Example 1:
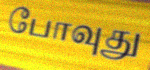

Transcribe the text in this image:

போவுது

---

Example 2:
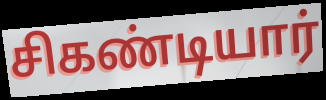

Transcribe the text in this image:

சிகண்டியார்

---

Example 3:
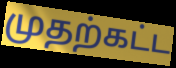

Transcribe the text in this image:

முதற்கட்ட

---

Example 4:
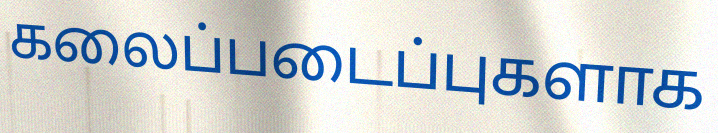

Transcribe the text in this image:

கலைப்படைப்புகளாக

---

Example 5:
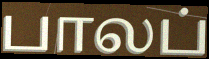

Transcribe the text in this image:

பாலப்